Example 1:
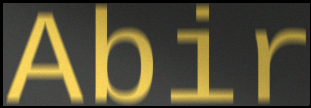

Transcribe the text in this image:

Abir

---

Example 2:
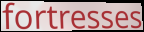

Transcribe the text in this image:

fortresses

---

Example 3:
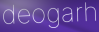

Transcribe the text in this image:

deogarh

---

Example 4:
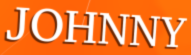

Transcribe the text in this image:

JOHNNY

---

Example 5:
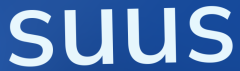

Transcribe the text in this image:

suus